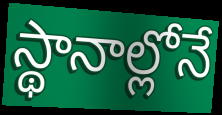
స్థానాల్లోనే